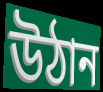
উঠান